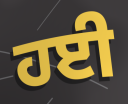
ਹਈ